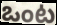
ఒంట